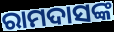
ରାମଦାସଙ୍କ